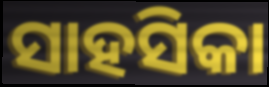
ସାହସିକା